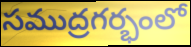
సముద్రగర్భంలో